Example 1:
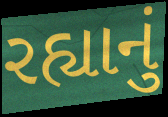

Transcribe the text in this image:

રહ્યાનું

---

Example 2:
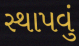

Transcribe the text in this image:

સ્થાપવું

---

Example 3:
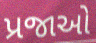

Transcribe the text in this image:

પ્રજાઓ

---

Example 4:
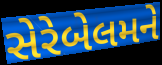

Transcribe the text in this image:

સેરેબેલમને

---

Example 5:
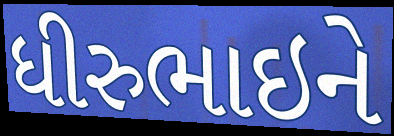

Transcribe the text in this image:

ધીરુભાઇને